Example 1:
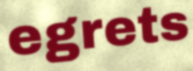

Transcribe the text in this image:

egrets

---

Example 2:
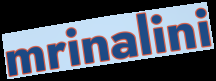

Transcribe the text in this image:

mrinalini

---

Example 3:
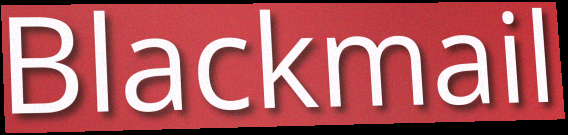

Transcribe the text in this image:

Blackmail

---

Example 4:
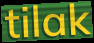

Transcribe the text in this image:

tilak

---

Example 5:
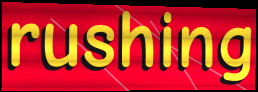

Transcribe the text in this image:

rushing